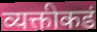
व्यक्तीकडं